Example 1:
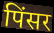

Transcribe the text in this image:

पिंसर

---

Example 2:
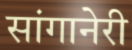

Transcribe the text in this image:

सांगानेरी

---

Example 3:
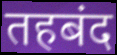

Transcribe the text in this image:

तहबंद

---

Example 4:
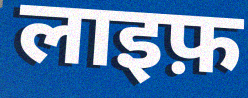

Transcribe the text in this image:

लाइफ़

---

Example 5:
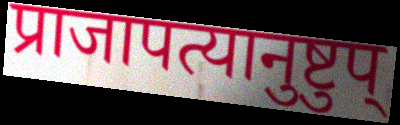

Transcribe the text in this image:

प्राजापत्यानुष्टुप्